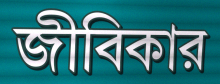
জীবিকার